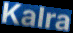
Kalra